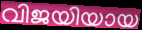
വിജയിയായ